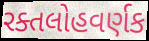
રક્તલોહવર્ણક